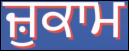
ਜ਼ੁਕਾਮ